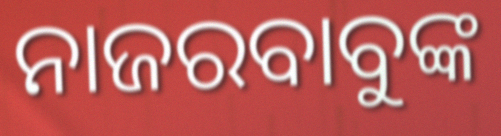
ନାଜରବାବୁଙ୍କ